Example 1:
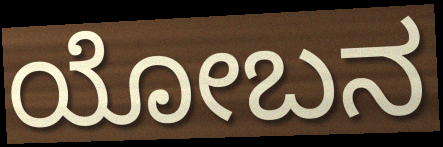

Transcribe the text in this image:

ಯೋಬನ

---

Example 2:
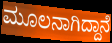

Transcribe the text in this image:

ಮೂಲನಾಗಿದ್ದಾನೆ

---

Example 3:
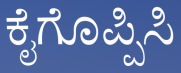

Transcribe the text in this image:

ಕೈಗೊಪ್ಪಿಸಿ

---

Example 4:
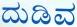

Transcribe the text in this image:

ದುಡಿವ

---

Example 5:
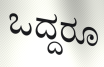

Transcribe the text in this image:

ಒದ್ದರೂ